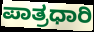
ಪಾತ್ರಧಾರಿ